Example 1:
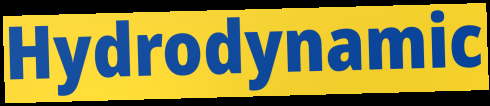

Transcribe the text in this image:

Hydrodynamic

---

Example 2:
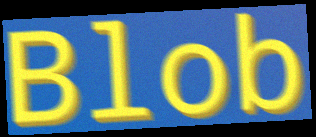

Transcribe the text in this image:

Blob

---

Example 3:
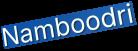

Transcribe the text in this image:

Namboodri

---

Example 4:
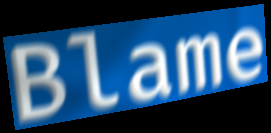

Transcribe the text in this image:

Blame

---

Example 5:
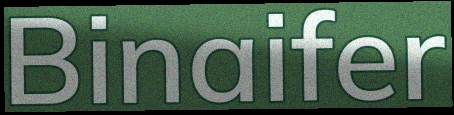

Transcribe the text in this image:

Binaifer